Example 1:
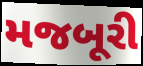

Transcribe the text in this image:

મજબૂરી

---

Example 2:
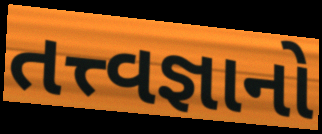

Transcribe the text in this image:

તત્ત્વજ્ઞાનો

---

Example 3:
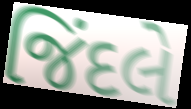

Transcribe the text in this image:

જિંદલે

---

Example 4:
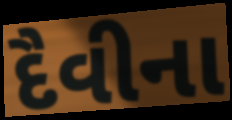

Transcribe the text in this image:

દૈવીના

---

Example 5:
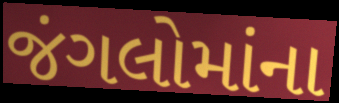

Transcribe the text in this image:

જંગલોમાંના